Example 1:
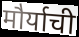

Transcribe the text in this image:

मौर्याची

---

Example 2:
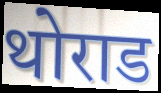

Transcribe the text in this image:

थोराड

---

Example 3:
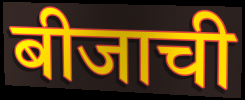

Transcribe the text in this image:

बीजाची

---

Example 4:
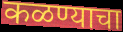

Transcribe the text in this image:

कळण्याचा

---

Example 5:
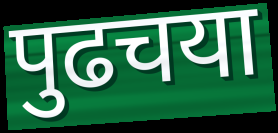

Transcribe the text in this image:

पुढचया